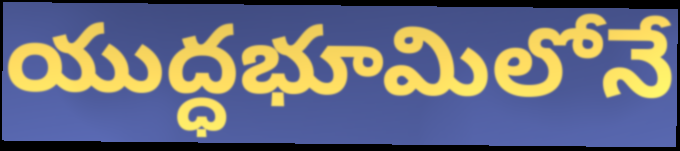
యుద్ధభూమిలోనే